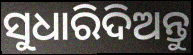
ସୁଧାରିଦିଅନ୍ତୁ